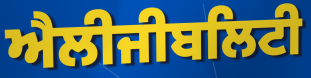
ਐਲੀਜੀਬਲਿਟੀ